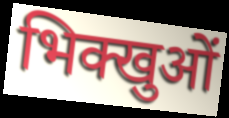
भिक्खुओं